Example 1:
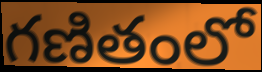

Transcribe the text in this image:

గణితంలో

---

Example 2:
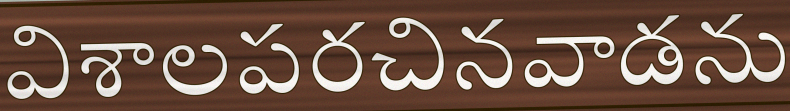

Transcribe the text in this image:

విశాలపరచినవాడను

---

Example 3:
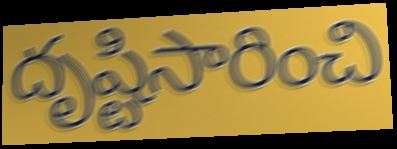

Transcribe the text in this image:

దృష్టిసారించి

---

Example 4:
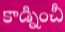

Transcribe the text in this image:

కాడ్నించీ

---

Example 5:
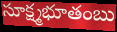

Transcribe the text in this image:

సూక్ష్మభూతంబు